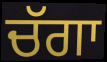
ਚੱਗਾ